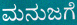
ಮನುಜಗೆ